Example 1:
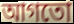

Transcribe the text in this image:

আগতো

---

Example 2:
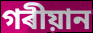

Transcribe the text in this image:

গৰীয়ান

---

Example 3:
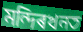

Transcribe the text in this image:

মন্দিৰখনত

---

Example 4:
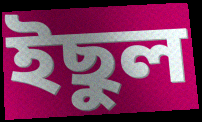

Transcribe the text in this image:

ইছুল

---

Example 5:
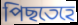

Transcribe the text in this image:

পিছতেহে